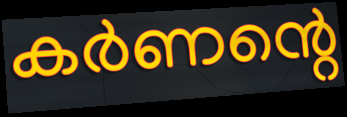
കർണന്റെ